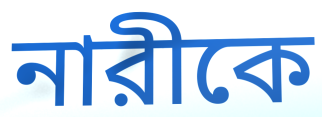
নারীকে